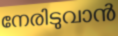
നേരിടുവാൻ